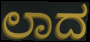
ಲಾದ